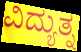
ವಿದ್ಯುತ್ನ